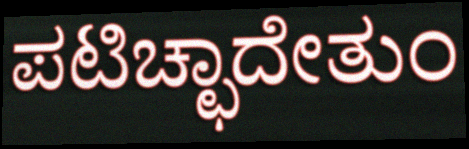
ಪಟಿಚ್ಛಾದೇತುಂ